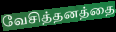
வேசித்தனத்தை